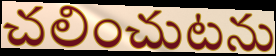
చలించుటను